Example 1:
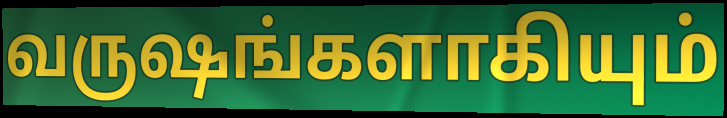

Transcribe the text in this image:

வருஷங்களாகியும்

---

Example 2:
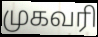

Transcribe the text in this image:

முகவரி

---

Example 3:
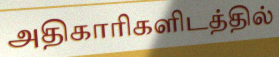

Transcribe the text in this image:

அதிகாரிகளிடத்தில்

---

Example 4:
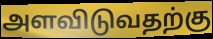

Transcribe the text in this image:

அளவிடுவதற்கு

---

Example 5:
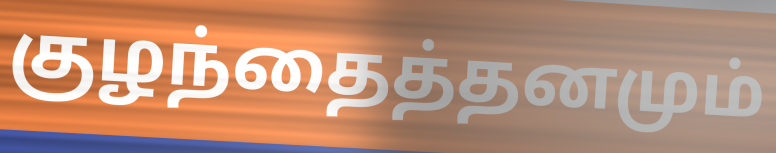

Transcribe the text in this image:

குழந்தைத்தனமும்